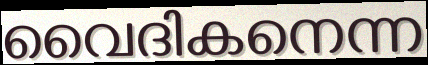
വൈദികനെന്ന